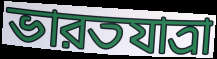
ভারতযাত্রা